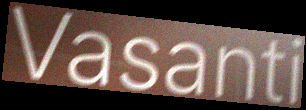
Vasanti